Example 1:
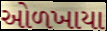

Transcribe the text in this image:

ઓળખાયા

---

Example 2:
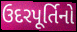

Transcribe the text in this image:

ઉદરપૂર્તિનો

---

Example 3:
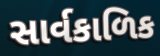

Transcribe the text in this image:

સાર્વકાળિક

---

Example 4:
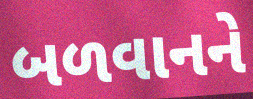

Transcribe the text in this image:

બળવાનને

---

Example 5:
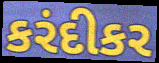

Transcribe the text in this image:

કરંદીકર